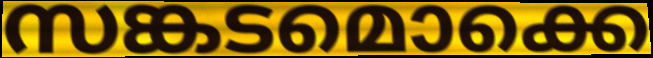
സങ്കടമൊക്കെ